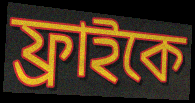
ফ্রাইকে